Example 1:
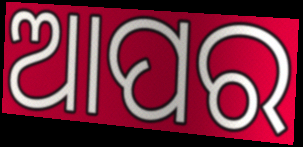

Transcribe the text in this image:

ଆପର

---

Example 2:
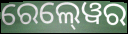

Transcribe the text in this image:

ରେଲ୍‍ୱେର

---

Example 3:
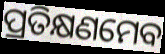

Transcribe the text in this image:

ପ୍ରତିକ୍ଷଣମେବ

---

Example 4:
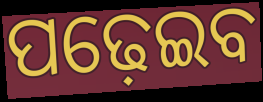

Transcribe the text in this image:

ପଢ଼େଇବ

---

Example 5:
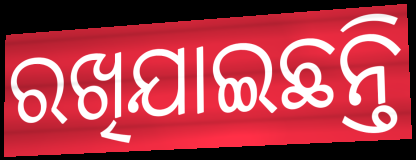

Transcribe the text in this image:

ରଖିଯାଇଛନ୍ତି